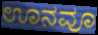
ಊನವೂ